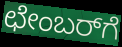
ಛೇಂಬರ್‌ಗೆ